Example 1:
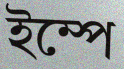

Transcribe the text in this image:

ইম্পে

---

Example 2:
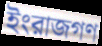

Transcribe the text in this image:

ইংরাজগণ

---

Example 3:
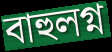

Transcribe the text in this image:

বাহুলগ্ন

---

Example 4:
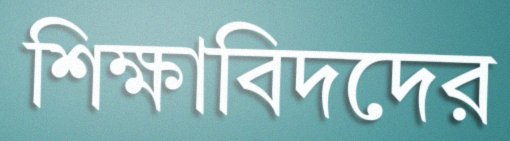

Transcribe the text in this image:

শিক্ষাবিদদের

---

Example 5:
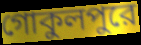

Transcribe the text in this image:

গোকুলপুরে